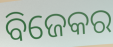
ବିଜେକର